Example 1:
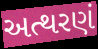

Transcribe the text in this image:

અત્થરણં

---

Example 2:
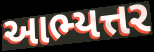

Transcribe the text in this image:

આભ્યત્તર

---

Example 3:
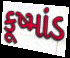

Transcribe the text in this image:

કૂષ્માંડ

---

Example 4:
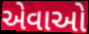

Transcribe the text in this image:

એવાઓ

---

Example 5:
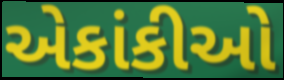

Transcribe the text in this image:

એકાંકીઓ